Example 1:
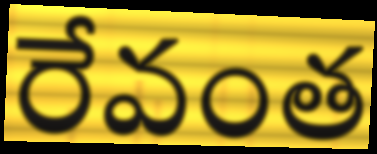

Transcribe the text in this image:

రేవంత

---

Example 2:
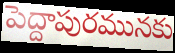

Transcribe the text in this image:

పెద్దాపురమునకు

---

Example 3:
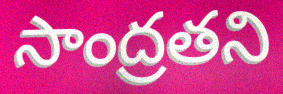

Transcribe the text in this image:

సాంద్రతని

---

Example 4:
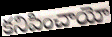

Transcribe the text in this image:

కనిపించాయో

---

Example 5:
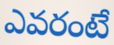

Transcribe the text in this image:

ఎవరంటే